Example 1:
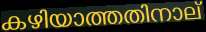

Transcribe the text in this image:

കഴിയാത്തതിനാല്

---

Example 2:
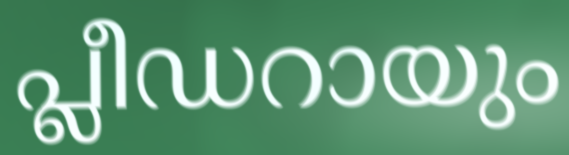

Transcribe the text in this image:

പ്ലീഡറായും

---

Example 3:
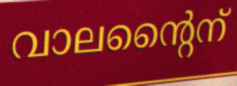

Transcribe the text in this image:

വാലന്റൈന്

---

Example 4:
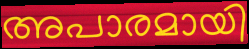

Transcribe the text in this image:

അപാരമായി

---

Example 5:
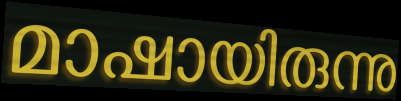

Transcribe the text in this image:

മാഷായിരുന്നു